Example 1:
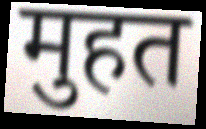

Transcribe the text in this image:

मुहत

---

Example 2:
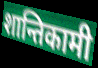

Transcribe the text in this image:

शान्तिकामी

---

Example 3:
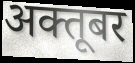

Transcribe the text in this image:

अक्तूबर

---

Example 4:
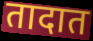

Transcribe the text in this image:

तादात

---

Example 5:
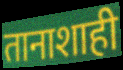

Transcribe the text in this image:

तानाशाही